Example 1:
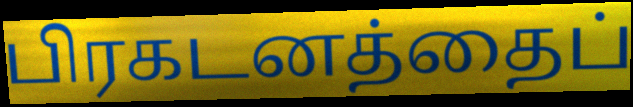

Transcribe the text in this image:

பிரகடனத்தைப்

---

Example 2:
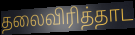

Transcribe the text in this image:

தலைவிரித்தாட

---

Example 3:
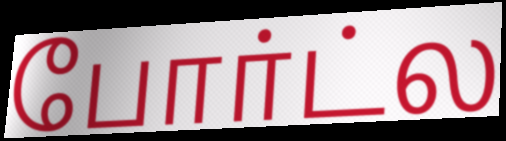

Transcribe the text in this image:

போர்ட்ல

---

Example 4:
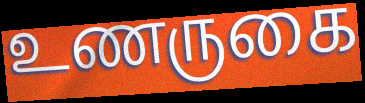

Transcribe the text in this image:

உணருகை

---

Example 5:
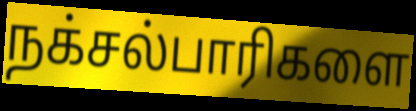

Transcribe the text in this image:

நக்சல்பாரிகளை